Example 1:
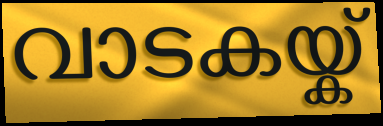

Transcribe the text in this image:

വാടകയ്ക്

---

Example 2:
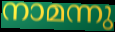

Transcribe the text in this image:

നാമന്നു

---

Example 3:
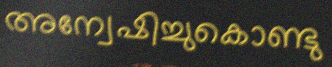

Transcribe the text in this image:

അന്വേഷിച്ചുകൊണ്ടു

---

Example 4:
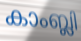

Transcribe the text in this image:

കാംബ്ലി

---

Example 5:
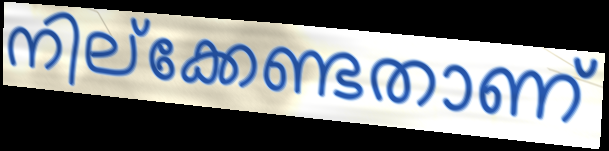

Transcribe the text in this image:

നില്ക്കേണ്ടതാണ്